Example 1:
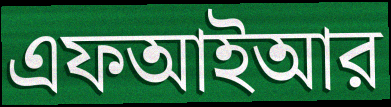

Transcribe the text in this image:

এফআইআর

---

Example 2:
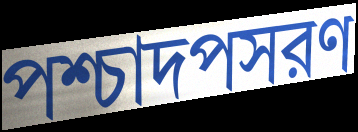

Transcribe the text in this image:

পশ্চাদপসরণ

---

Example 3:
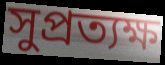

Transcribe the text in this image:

সুপ্রত্যক্ষ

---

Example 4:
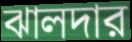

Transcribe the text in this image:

ঝালদার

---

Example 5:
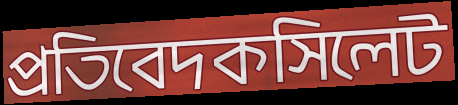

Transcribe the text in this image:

প্রতিবেদকসিলেট